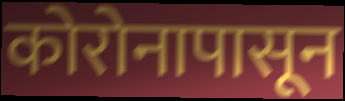
कोरोनापासून